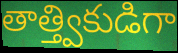
తాత్త్వికుడిగా